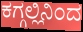
ಕಗ್ಗಲ್ಲಿನಿಂದ